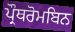
ਪ੍ਰੌਥਰੋਮਬਿਨ